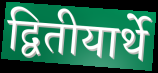
द्वितीयार्थे